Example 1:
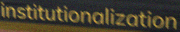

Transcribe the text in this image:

institutionalization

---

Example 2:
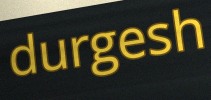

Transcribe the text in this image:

durgesh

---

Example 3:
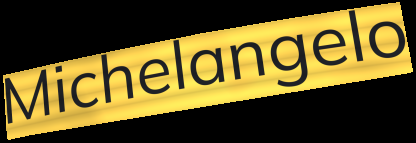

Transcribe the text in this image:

Michelangelo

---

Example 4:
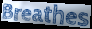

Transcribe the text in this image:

Breathes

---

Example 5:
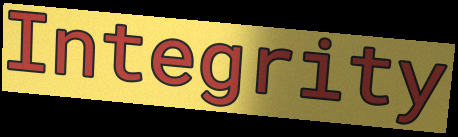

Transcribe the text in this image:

Integrity